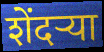
शेंदर्‍या